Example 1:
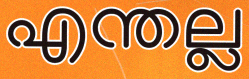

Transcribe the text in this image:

എന്തല്ല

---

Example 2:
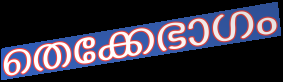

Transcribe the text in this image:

തെക്കേഭാഗം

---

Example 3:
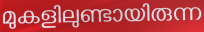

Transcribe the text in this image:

മുകളിലുണ്ടായിരുന്ന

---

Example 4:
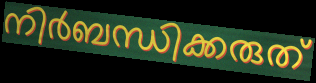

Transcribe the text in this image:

നിർബന്ധിക്കരുത്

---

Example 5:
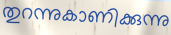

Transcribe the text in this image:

തുറന്നുകാണിക്കുന്നു